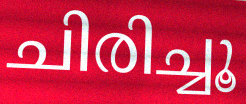
ചിരിച്ചൂ